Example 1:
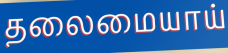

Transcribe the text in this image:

தலைமையாய்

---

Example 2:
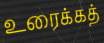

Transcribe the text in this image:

உரைக்கத்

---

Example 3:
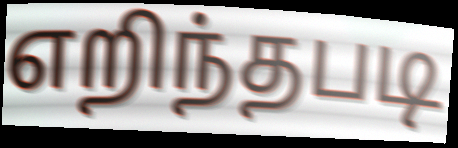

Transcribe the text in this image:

எறிந்தபடி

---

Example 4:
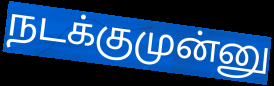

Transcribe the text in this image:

நடக்குமுன்னு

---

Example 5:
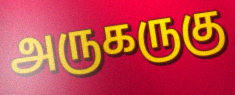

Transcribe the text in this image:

அருகருகு